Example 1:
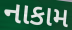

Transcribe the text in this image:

નાકામ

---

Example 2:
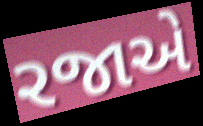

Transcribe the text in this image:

રજાએ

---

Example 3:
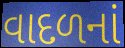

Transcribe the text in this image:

વાદળનાં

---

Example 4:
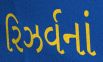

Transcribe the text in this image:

રિઝર્વનાં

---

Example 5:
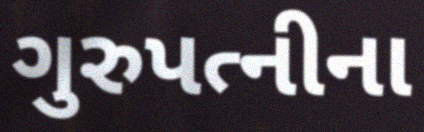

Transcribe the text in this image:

ગુરુપત્નીના